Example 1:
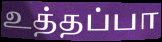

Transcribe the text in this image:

உத்தப்பா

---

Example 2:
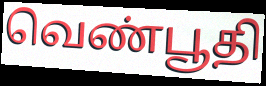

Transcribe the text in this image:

வெண்பூதி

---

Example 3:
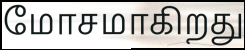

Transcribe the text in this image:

மோசமாகிறது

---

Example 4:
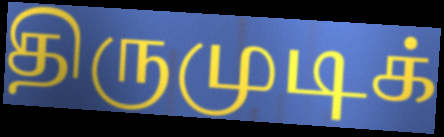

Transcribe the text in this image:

திருமுடிக்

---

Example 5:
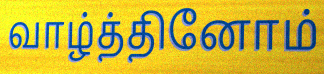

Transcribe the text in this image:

வாழ்த்தினோம்